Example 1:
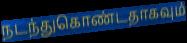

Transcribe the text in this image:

நடந்துகொண்டதாகவும்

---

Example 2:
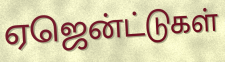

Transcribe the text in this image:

ஏஜென்ட்டுகள்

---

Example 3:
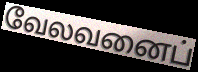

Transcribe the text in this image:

வேலவனைப்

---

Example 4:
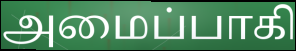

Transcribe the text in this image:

அமைப்பாகி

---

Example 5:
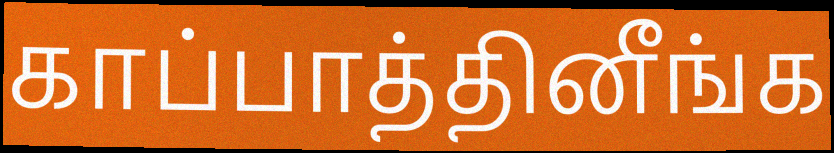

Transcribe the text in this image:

காப்பாத்தினீங்க